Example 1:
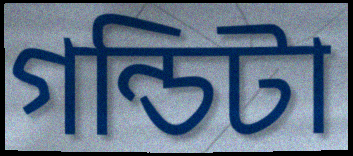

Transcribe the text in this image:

গন্ডিটা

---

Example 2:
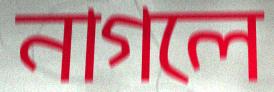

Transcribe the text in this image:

নাগলে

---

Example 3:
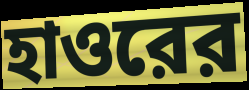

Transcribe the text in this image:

হাওরের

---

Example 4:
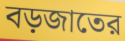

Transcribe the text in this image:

বড়জাতের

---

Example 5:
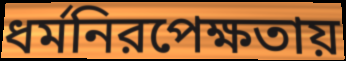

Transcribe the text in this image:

ধর্মনিরপেক্ষতায়